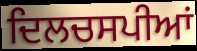
ਦਿਲਚਸਪੀਆਂ